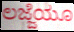
ಲಜ್ಜೆಯೂ